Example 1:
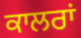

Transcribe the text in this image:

ਕਾਲਰਾਂ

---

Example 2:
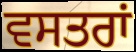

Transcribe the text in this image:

ਵਸਤਰਾਂ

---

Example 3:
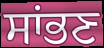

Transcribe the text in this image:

ਸਾਂਭਣ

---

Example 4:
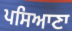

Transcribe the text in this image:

ਪਸਿਆਣਾ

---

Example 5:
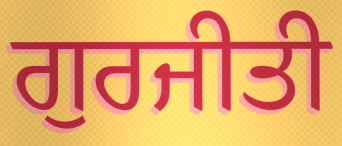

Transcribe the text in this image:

ਗੁਰਜੀਤੀ